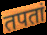
तपतां